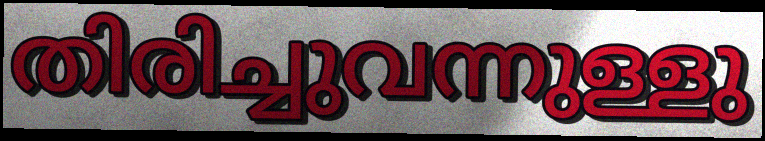
തിരിച്ചുവന്നുള്ളു